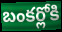
బంకర్లోకి